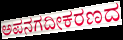
ಅಪನಗದೀಕರಣದ